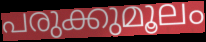
പരുക്കുമൂലം